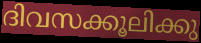
ദിവസക്കൂലിക്കു